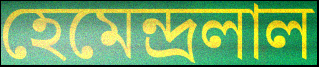
হেমেন্দ্রলাল